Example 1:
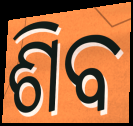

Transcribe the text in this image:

ଶିବ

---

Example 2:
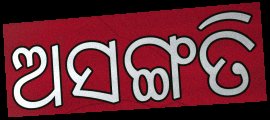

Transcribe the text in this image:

ଅସଙ୍ଗତି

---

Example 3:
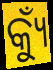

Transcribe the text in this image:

କ୍ୟୁଁ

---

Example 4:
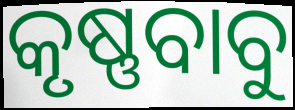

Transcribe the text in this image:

କୃଷ୍ଣବାବୁ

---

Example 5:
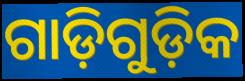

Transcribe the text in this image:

ଗାଡ଼ିଗୁଡ଼ିକ